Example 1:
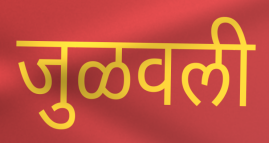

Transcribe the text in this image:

जुळवली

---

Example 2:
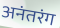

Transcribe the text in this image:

अनंतरंग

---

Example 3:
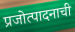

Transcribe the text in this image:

प्रजोत्पादनाची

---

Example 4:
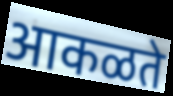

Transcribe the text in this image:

आकळते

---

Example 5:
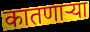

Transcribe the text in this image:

कातणाऱ्या